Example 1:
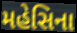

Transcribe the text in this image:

મહેસિના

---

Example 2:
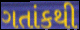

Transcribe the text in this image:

ગતાંકથી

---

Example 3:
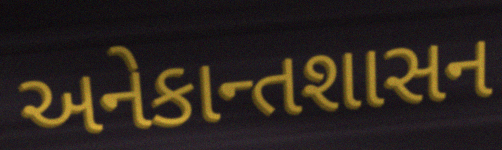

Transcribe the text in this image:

અનેકાન્તશાસન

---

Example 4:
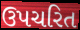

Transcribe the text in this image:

ઉપચરિત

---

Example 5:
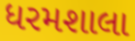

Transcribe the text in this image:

ધરમશાલા